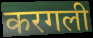
करगली